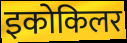
इकोकिलर